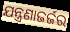
ଯନ୍ତ୍ରଣାଜର୍ଜର